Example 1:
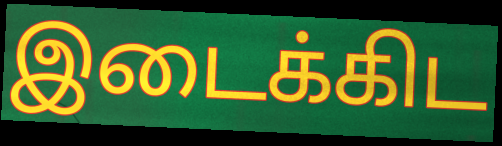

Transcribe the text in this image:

இடைக்கிட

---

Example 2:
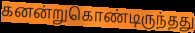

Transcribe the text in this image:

கனன்றுகொண்டிருந்தது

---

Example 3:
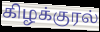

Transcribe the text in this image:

கிழக்குரல்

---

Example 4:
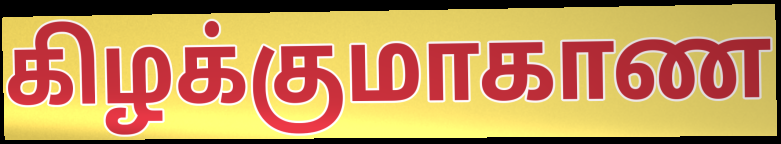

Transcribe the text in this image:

கிழக்குமாகாண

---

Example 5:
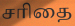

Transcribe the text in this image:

சரிதை